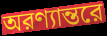
অরণ্যান্তরে